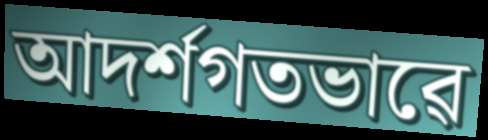
আদৰ্শগতভাৱে